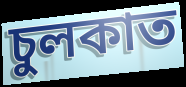
চুলকাত